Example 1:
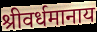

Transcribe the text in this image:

श्रीवर्धमानाय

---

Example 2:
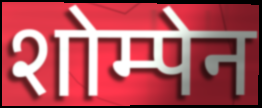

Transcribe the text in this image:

शोम्पेन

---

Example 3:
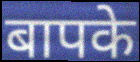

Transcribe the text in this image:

बापके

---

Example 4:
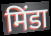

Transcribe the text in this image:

मिंडा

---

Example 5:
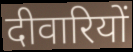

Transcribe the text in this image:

दीवारियों